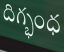
దిగ్భంధ